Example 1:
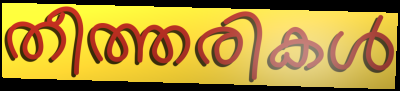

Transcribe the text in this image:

തീത്തരികൾ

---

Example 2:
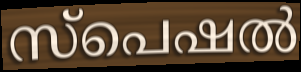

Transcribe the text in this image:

സ്പെഷൽ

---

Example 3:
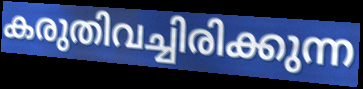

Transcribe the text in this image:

കരുതിവച്ചിരിക്കുന്ന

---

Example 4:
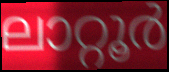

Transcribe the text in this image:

ലാറ്റൂർ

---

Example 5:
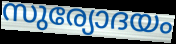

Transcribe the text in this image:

സുര്യോദയം